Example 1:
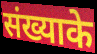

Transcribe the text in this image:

संख्याके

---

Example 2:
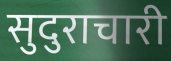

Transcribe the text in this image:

सुदुराचारी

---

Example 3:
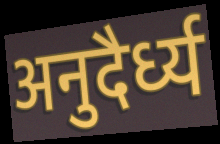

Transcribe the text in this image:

अनुदैर्ध्य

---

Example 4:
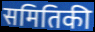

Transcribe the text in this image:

समितिकी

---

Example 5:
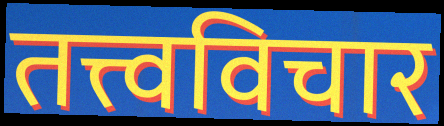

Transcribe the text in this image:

तत्त्वविचार